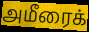
அமீரைக்